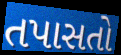
તપાસતો